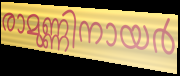
രാമുണ്ണിനായർ